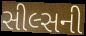
સીલ્સની